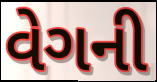
વેગની